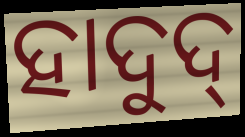
ହାଦୁଦ୍